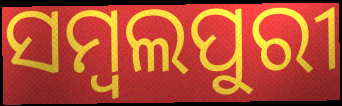
ସମ୍ବଲପୁରୀ